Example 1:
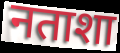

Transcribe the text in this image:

नताशा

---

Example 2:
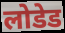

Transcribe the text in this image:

लोडेड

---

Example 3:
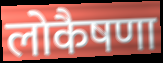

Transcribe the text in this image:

लोकैषणा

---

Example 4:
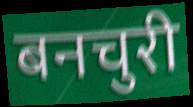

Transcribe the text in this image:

बनचुरी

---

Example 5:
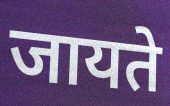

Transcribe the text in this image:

जायते